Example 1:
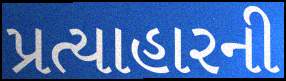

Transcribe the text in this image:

પ્રત્યાહારની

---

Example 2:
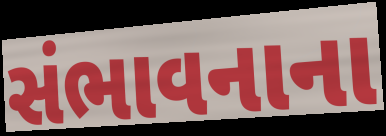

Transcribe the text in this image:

સંભાવનાના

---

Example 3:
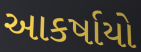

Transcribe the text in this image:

આકર્ષાયો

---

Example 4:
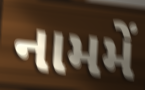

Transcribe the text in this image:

નામમેં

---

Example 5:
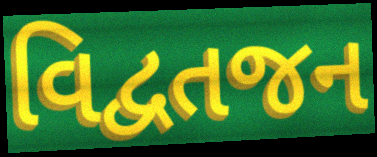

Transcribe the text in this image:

વિદ્વતજન